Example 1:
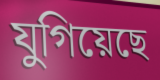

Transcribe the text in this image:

যুগিয়েছে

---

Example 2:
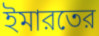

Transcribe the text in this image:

ইমারতের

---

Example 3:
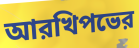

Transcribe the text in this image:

আরখিপভের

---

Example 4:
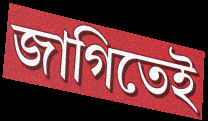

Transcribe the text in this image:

জাগিতেই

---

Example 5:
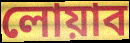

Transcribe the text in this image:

লোয়াব